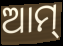
ଆମ୍